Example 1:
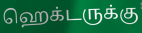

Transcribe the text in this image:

ஹெக்டருக்கு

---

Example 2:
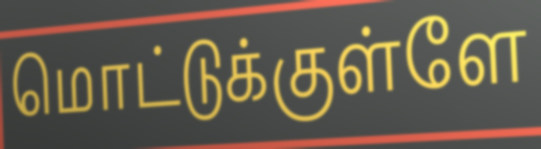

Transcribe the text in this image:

மொட்டுக்குள்ளே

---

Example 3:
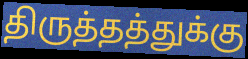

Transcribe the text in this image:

திருத்தத்துக்கு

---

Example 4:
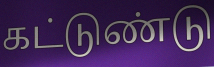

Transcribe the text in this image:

கட்டுண்டு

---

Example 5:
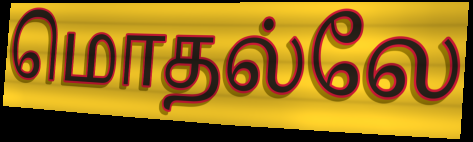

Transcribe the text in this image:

மொதல்லே